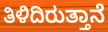
ತಿಳಿದಿರುತ್ತಾನೆ